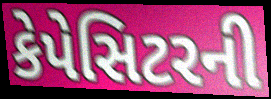
કેપેસિટરની